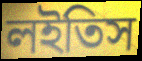
লইতিস